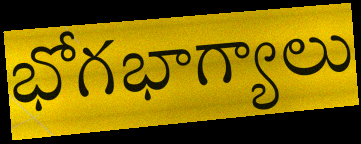
భోగభాగ్యాలు